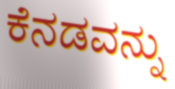
ಕೆನಡವನ್ನು